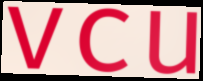
vcu